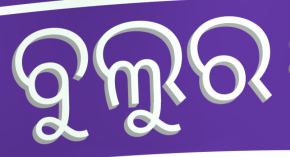
ବୁଲୁର